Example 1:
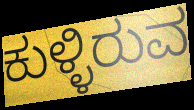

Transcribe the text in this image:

ಕುಳ್ಳಿರುವ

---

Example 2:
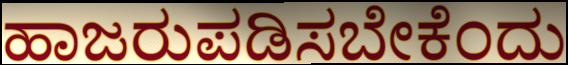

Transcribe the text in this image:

ಹಾಜರುಪಡಿಸಬೇಕೆಂದು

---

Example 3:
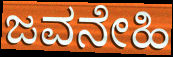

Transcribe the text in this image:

ಜವನೇಹಿ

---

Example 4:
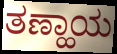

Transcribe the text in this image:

ತಣ್ಹಾಯ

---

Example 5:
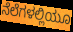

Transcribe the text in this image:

ನೆಲೆಗಳಲ್ಲಿಯೂ